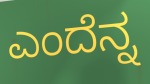
ಎಂದೆನ್ನ